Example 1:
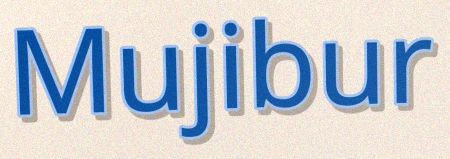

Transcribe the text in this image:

Mujibur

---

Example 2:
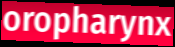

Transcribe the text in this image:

oropharynx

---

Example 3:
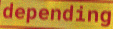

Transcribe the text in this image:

depending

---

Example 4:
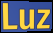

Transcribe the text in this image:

Luz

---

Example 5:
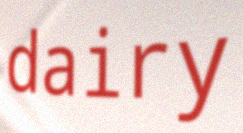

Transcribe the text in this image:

dairy